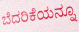
ಬೆದರಿಕೆಯನ್ನೂ